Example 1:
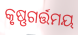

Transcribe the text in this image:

କୃଷ୍ଣଗର୍ତ୍ତମୟ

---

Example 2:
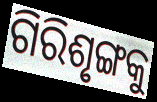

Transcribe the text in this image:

ଗିରିଶୃଙ୍ଗକୁ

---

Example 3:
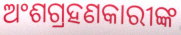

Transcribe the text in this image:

ଅଂଶଗ୍ରହଣକାରୀଙ୍କ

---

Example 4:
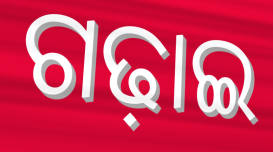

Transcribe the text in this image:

ଗଢ଼ାଇ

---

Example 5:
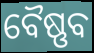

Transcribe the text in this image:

ବୈଷ୍ଣବ